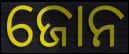
ଜୋନ